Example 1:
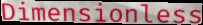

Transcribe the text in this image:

Dimensionless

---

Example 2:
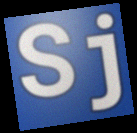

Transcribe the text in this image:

Sj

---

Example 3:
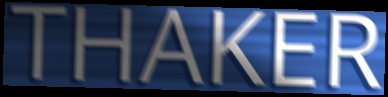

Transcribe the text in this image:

THAKER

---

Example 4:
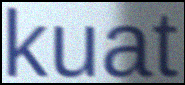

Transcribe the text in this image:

kuat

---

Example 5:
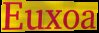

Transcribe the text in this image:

Euxoa